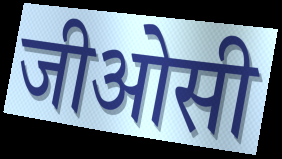
जीओसी